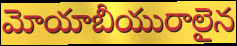
మోయాబీయురాలైన